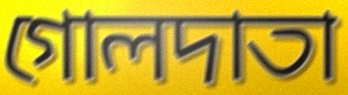
গোলদাতা